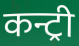
कन्ट्री